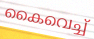
കൈവെച്ച്